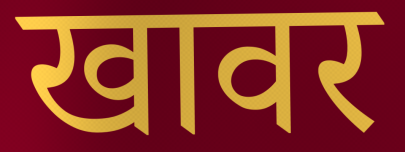
खावर